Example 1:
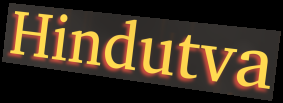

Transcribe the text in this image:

Hindutva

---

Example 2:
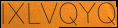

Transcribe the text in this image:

IXLVQYQ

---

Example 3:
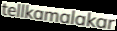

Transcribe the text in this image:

tellkamalakar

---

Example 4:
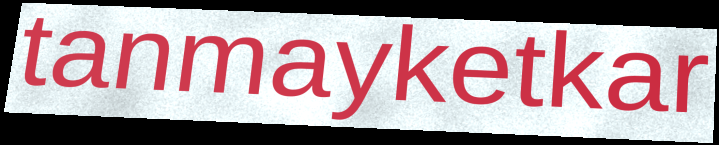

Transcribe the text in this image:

tanmayketkar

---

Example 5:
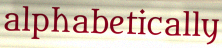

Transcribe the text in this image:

alphabetically